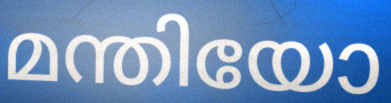
മന്തിയോ